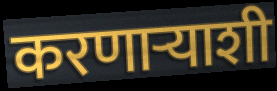
करणाऱ्याशी